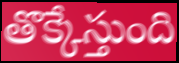
తొక్కేస్తుంది